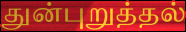
துன்புறுத்தல்